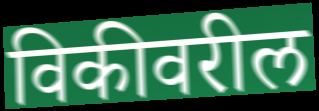
विकीवरील